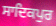
ਸਾਦਿਕਪੁਰ